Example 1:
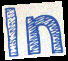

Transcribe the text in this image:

In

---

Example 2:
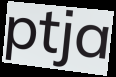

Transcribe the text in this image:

ptja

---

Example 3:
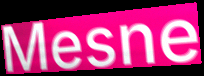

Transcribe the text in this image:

Mesne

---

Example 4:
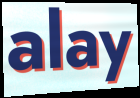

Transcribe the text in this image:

alay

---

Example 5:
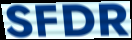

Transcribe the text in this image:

SFDR